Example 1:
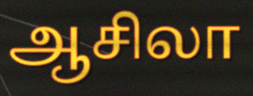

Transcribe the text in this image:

ஆசிலா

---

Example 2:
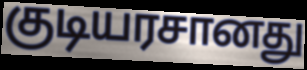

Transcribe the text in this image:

குடியரசானது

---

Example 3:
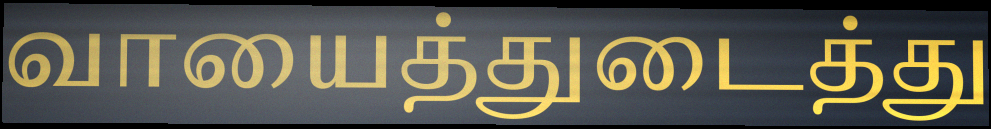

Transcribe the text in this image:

வாயைத்துடைத்து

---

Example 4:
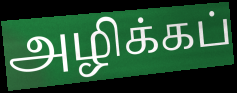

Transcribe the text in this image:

அழிக்கப்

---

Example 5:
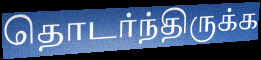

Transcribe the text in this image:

தொடர்ந்திருக்க